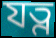
যত্ন